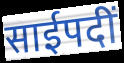
साईपदीं